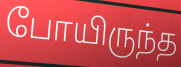
போயிருந்த